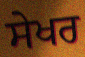
ਸੇਖਰ